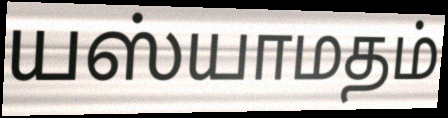
யஸ்யாமதம்